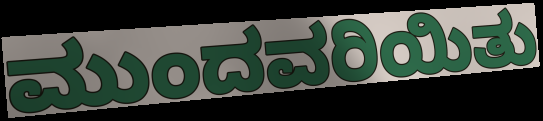
ಮುಂದವರಿಯಿತು